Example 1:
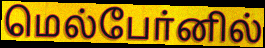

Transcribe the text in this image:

மெல்பேர்னில்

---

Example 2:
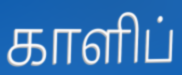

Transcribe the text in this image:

காளிப்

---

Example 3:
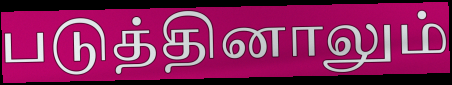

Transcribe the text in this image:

படுத்தினாலும்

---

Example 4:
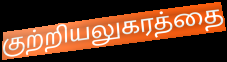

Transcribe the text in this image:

குற்றியலுகரத்தை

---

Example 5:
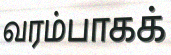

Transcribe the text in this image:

வரம்பாகக்